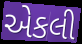
એકલી